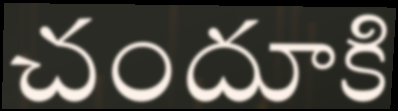
చందూకి